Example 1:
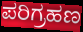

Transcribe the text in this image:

ಪರಿಗ್ರಹಣ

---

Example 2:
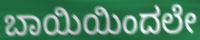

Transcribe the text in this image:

ಬಾಯಿಯಿಂದಲೇ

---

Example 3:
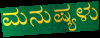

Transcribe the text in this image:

ಮನುಷ್ಯಳು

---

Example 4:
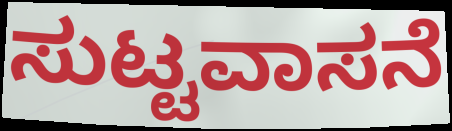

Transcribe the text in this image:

ಸುಟ್ಟವಾಸನೆ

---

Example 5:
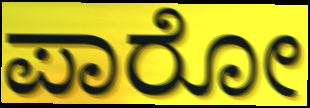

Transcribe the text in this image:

ಪಾರೋ